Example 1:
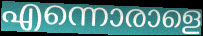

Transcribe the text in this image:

എന്നൊരാളെ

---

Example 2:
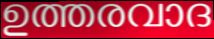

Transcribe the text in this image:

ഉത്തരവാദ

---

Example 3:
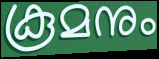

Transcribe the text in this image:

കൂമനും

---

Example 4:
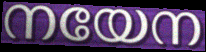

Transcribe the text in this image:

നയേന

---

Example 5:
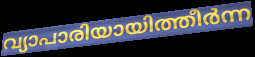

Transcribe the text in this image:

വ്യാപാരിയായിത്തീർന്ന